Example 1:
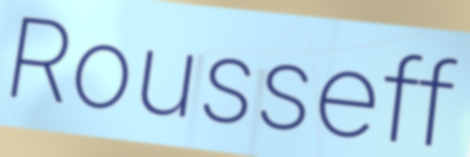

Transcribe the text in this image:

Rousseff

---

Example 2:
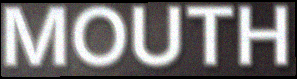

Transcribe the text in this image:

MOUTH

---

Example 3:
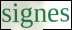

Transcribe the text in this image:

signes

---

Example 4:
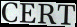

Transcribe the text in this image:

CERT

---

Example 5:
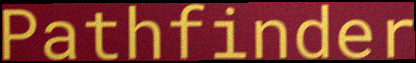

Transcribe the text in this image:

Pathfinder